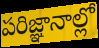
పరిజ్ఞానాల్లో